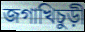
জগাখিচুড়ী